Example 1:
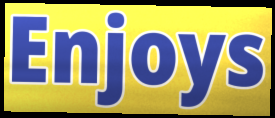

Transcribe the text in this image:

Enjoys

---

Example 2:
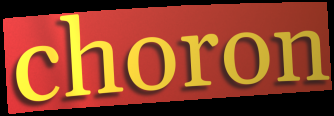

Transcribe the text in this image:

choron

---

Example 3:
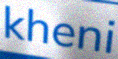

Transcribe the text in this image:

kheni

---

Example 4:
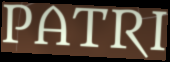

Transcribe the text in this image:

PATRI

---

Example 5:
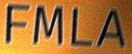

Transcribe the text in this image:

FMLA